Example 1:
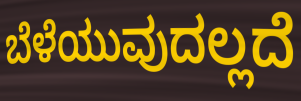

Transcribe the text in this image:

ಬೆಳೆಯುವುದಲ್ಲದೆ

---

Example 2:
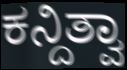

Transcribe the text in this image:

ಕನ್ದಿತ್ವಾ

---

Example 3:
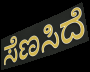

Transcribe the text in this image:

ಸೆಣಸಿದೆ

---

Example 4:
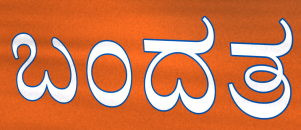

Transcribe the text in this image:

ಬಂದತ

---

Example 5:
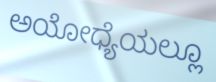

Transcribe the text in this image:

ಅಯೋಧ್ಯೆಯಲ್ಲೂ